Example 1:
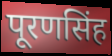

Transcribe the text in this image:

पूरणसिंह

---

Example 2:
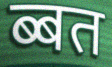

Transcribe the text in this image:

ब्बत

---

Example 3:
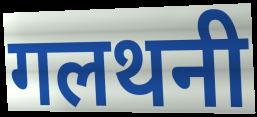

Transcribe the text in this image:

गलथनी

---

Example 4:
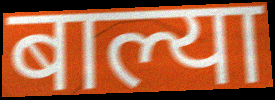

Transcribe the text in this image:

बाल्या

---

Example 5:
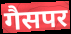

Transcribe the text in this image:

गैसपर